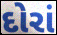
દોરાં